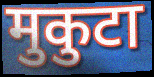
मुकुटा